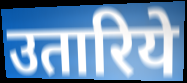
उतारिये